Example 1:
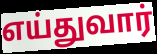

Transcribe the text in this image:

எய்துவார்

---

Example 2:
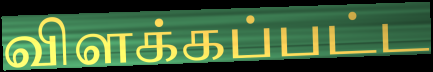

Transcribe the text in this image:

விளக்கப்பட்ட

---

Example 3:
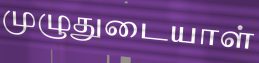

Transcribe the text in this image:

முழுதுடையாள்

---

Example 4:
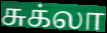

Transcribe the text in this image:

சுக்லா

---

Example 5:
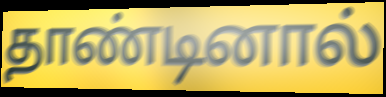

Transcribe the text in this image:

தாண்டினால்